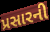
પ્રસારની